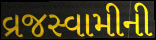
વ્રજસ્વામીની